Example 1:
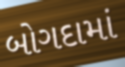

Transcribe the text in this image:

બોગદામાં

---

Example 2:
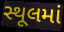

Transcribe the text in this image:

સ્થૂલમાં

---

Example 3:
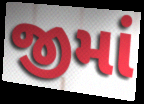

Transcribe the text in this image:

જીમાં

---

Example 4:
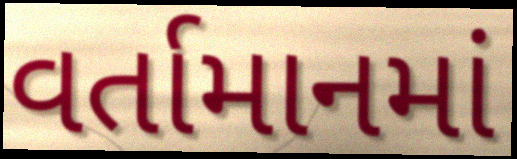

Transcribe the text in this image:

વર્તામાનમાં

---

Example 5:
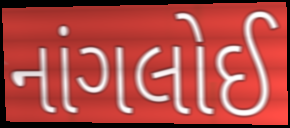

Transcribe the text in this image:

નાંગલોઈ